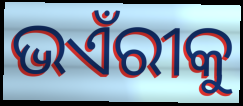
ଭଏଁରୀକୁ